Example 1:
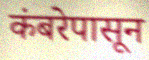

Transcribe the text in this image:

कंबरेपासून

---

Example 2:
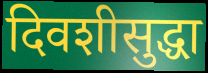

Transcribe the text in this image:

दिवशीसुद्धा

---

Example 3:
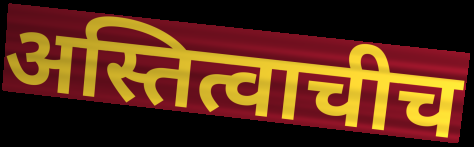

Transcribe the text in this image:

अस्तित्वाचीच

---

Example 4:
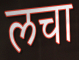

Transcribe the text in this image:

लचा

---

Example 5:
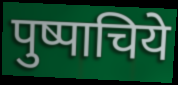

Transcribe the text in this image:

पुष्पाचिये